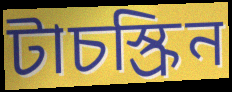
টাচস্ক্রিন